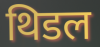
थिडल